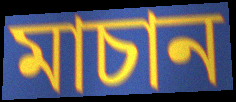
মাচান